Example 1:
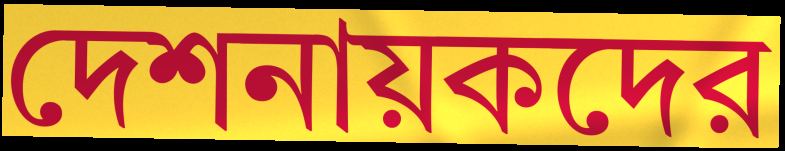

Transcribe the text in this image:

দেশনায়কদের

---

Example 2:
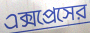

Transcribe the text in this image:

এক্সপ্রেসের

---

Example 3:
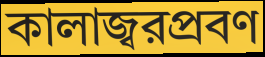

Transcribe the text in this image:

কালাজ্বরপ্রবণ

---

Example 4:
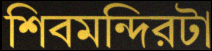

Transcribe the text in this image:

শিবমন্দিরটা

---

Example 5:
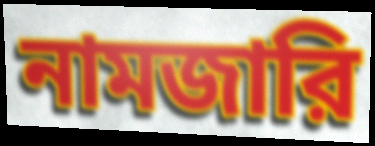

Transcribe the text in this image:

নামজারি